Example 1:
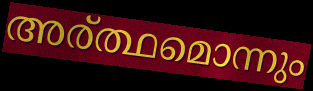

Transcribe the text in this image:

അര്ത്ഥമൊന്നും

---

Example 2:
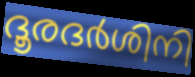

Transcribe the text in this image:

ദൂരദർശിനി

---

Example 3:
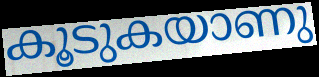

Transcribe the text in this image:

കൂടുകയാണു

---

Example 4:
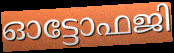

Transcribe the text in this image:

ഓട്ടോഫജി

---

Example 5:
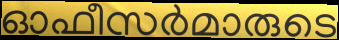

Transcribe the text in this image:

ഓഫീസർമാരുടെ